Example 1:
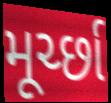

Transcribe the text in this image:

મૂર્ચ્છા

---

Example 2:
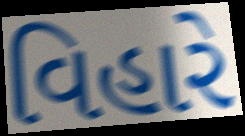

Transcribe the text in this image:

વિહારે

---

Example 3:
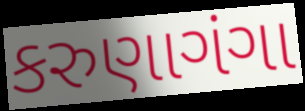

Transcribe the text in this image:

કરુણાગંગા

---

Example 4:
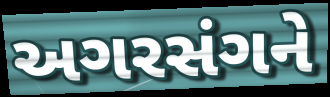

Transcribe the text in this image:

અગરસંગને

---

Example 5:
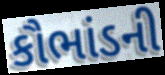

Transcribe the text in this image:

કૌભાંડની